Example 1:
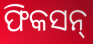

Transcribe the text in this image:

ଫିକସନ୍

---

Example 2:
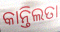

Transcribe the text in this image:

କାନ୍ତିଲତା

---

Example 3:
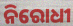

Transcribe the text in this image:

ନିରୋଧୀ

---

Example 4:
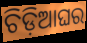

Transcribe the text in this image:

ଚିଡ଼ିଆଘର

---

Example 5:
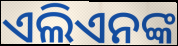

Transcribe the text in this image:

ଏଲିଏନଙ୍କ